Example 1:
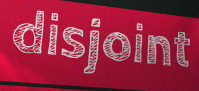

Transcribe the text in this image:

disjoint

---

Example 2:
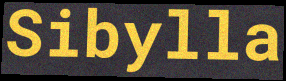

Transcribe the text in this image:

Sibylla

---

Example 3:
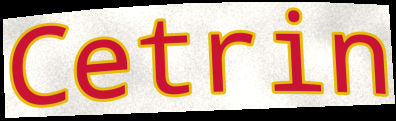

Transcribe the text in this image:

Cetrin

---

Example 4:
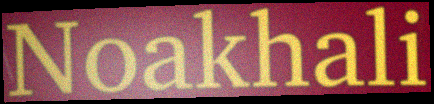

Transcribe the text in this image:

Noakhali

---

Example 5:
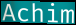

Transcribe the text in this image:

Achim